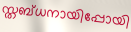
സ്തബ്ധനായിപ്പോയി